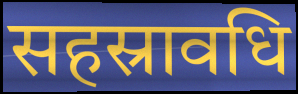
सहस्रावधि